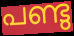
പണ്ടു